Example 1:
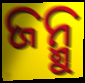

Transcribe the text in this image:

ଜନ୍ମୁ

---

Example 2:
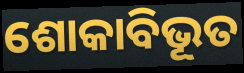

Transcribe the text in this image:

ଶୋକାବିଭୂତ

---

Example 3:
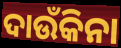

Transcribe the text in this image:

ଦାଉଁକିନା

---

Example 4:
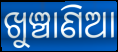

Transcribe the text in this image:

ଖୁଞ୍ଚାଣିଆ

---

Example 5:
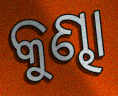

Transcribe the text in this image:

କୁଣ୍ଢା